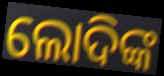
ଲୋଦିଙ୍କ